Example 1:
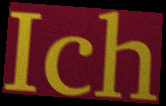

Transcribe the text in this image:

Ich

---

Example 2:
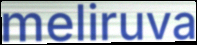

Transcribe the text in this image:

meliruva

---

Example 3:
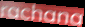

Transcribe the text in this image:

rachana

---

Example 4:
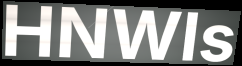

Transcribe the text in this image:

HNWIs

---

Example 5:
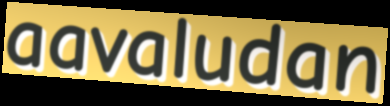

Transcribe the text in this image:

aavaludan